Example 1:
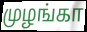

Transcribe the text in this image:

முழங்கா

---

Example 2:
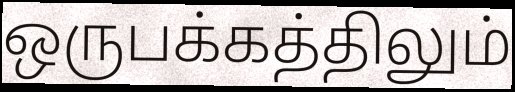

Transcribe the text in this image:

ஒருபக்கத்திலும்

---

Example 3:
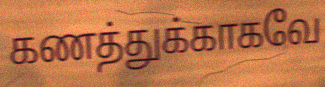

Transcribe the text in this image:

கணத்துக்காகவே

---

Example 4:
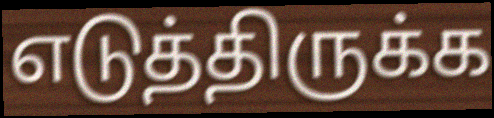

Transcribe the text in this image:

எடுத்திருக்க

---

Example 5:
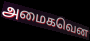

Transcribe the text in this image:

அமைகவென